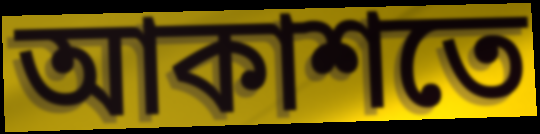
আকাশতে